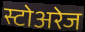
स्टोअरेज